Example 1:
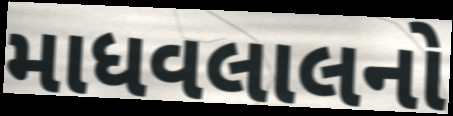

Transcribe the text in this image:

માધવલાલનો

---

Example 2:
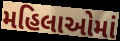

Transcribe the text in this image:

મહિલાઓમાં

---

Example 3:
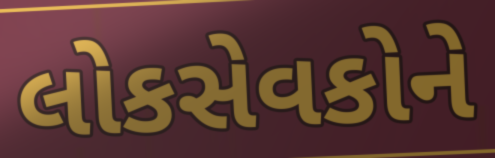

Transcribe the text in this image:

લોકસેવકોને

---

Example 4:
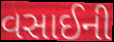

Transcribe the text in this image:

વસાઈની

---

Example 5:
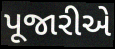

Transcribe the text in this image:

પૂજારીએ